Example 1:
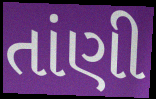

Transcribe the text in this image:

તાંણી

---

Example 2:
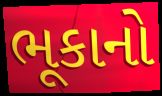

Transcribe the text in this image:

ભૂકાનો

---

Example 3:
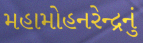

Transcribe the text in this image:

મહામોહનરેન્દ્રનું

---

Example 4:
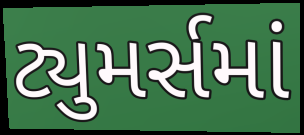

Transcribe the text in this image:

ટ્યુમર્સમાં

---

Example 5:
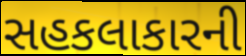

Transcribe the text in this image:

સહકલાકારની